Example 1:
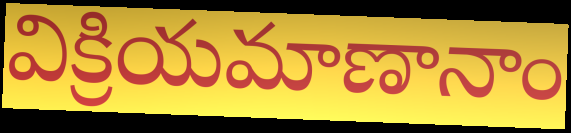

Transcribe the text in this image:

విక్రియమాణానాం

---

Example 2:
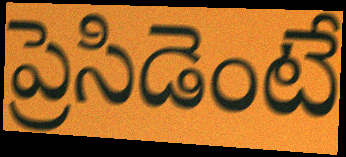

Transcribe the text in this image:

ప్రెసిడెంటే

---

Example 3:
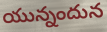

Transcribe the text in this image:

యున్నందున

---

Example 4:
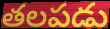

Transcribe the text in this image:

తలపడు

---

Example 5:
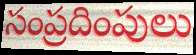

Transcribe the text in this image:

సంప్రదింపులు